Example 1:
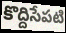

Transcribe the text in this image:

కొద్దిసేపటి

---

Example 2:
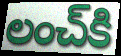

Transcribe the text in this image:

లంచ్‌కి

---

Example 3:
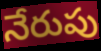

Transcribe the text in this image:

నేరుపు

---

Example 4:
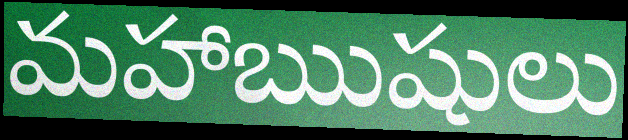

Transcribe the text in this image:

మహాఋషులు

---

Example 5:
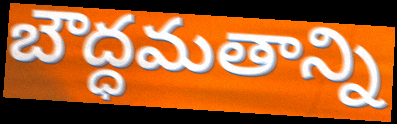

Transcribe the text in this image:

బౌద్ధమతాన్ని